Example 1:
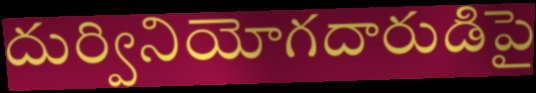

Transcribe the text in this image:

దుర్వినియోగదారుడిపై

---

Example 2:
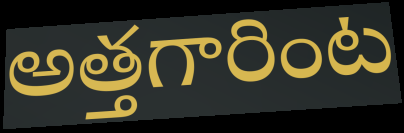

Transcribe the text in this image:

అత్తగారింట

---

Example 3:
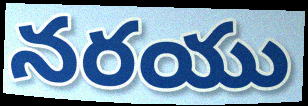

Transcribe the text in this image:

నరయు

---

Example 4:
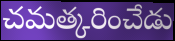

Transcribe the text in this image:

చమత్కరించేడు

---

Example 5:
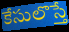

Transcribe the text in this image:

కేసులొస్తే